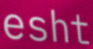
esht